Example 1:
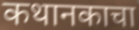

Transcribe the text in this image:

कथानकाचा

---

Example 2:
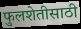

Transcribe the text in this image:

फुलशेतीसाठी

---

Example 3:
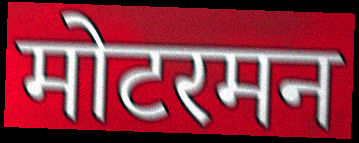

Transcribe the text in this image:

मोटरमन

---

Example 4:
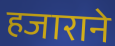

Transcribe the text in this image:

हजाराने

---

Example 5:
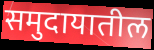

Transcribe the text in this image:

समुदायातील